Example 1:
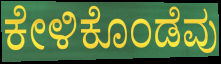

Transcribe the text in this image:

ಕೇಳಿಕೊಂಡೆವು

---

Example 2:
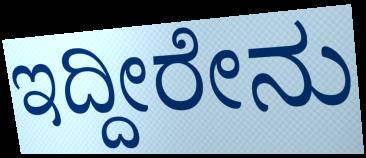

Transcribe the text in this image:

ಇದ್ದೀರೇನು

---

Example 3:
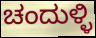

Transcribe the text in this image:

ಚಂದುಳ್ಳಿ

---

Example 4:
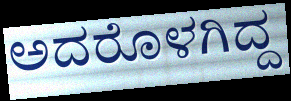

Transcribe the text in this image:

ಅದರೊಳಗಿದ್ದ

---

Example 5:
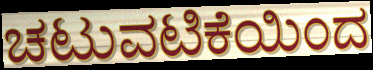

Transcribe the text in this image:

ಚಟುವಟಿಕೆಯಿಂದ